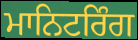
ਮਾਨਿਟਰਿੰਗ